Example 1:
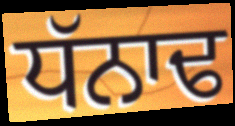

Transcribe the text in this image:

ਧੱਨਾਢ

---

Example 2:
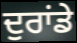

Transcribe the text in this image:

ਦੁਰਾਂਡੇ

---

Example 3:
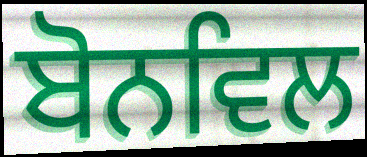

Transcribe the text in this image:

ਬੋਨਵਿਲ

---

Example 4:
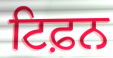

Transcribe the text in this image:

ਟਿਫ਼ਨ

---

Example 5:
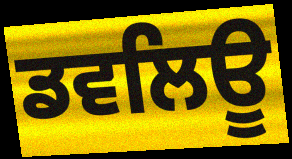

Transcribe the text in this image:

ਡਵਲਿਊ